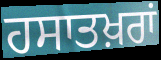
ਹਸਾਤਖ਼ਰਾਂ